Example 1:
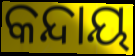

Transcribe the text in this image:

କନ୍ଦାୟ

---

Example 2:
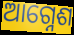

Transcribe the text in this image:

ଆଗ୍ନେଶ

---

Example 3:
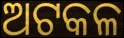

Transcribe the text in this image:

ଅଟକଳ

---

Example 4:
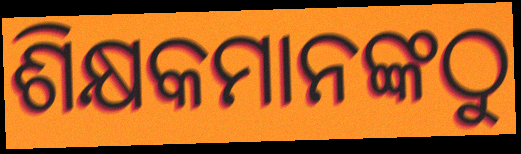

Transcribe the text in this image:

ଶିକ୍ଷକମାନଙ୍କଠୁ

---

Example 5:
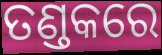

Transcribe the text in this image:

ତଣ୍ଡକରେ